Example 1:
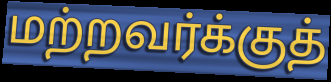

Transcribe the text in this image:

மற்றவர்க்குத்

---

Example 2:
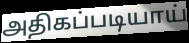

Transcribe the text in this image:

அதிகப்படியாய்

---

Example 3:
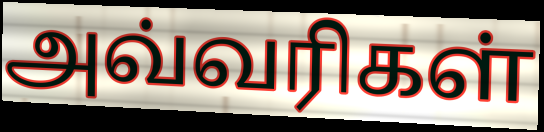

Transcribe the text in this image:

அவ்வரிகள்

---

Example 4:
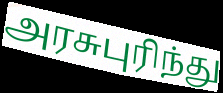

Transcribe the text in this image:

அரசுபுரிந்து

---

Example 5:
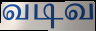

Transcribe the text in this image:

வடிவ